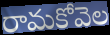
రామకోవెల